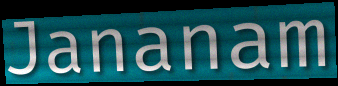
Jananam